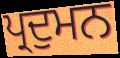
ਪ੍ਰਦੁਮਨ